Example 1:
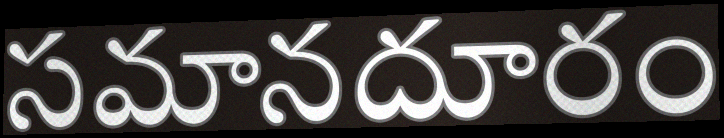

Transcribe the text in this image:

సమానదూరం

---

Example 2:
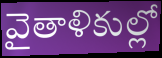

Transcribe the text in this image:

వైతాళికుల్లో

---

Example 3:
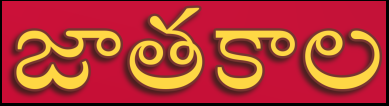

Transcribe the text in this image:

జాతకాల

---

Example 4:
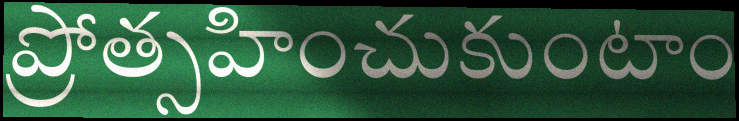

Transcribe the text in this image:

ప్రోత్సహించుకుంటాం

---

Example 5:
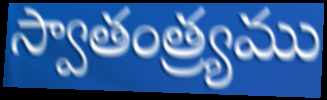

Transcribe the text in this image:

స్వాతంత్ర్యము